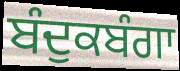
ਬੰਦੁਕਬੰਗਾ